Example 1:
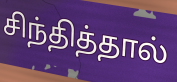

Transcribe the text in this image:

சிந்தித்தால்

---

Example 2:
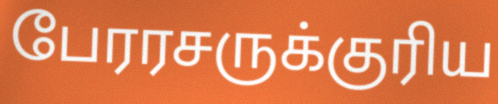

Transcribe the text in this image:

பேரரசருக்குரிய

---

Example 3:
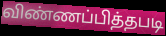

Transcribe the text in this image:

விண்ணப்பித்தபடி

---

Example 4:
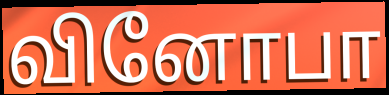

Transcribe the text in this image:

வினோபா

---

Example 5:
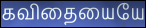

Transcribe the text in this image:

கவிதையையே